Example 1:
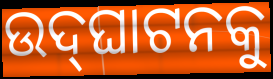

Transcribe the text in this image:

ଉଦ୍‌ଘାଟନକୁ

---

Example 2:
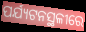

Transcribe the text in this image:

ପର୍ଯ୍ୟଟନସ୍ଥଳୀରେ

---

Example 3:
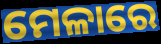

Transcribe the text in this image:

ମେଳାରେ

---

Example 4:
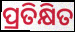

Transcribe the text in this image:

ପ୍ରତିକ୍ଷିତ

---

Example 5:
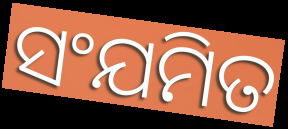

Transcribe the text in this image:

ସଂଯମିତ